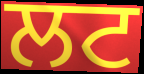
ਲਟ